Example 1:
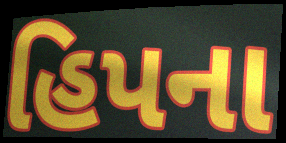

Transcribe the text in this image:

હિપના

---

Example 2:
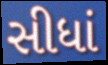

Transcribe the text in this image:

સીધાં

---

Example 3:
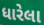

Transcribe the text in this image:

ધારેલા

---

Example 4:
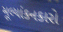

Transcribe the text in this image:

મૂલ્યાંકનકારો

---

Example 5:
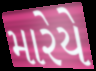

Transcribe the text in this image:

મારેયે